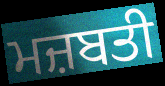
ਮਜ਼ਬਤੀ